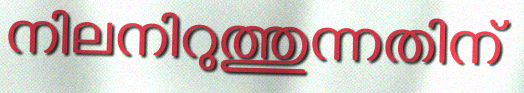
നിലനിറുത്തുന്നതിന്